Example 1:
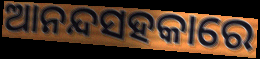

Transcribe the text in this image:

ଆନନ୍ଦସହକାରେ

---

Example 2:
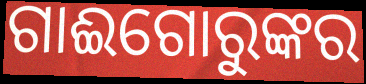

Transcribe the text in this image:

ଗାଈଗୋରୁଙ୍କର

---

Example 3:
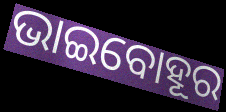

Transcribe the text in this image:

ଭାଇବୋହୂର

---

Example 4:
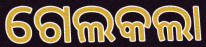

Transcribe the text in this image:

ଗେଲକଲା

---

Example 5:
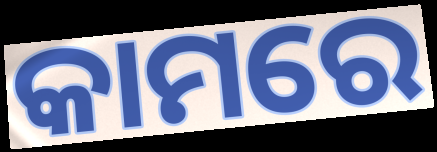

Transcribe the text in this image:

କାମରେ